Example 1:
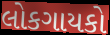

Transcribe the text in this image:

લોકગાયકો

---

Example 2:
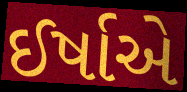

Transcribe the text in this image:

ઈર્ષાએ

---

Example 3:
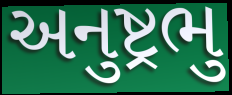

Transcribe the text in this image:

અનુષ્ટ્રભુ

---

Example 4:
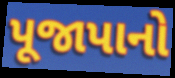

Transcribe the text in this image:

પૂજાપાનો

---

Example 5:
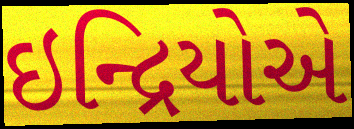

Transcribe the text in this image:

ઇન્દ્રિયોએ